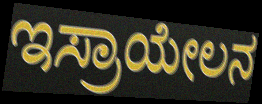
ಇಸ್ರಾಯೇಲನ